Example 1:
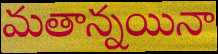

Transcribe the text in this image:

మతాన్నయినా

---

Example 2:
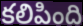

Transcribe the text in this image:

కలిపింది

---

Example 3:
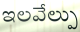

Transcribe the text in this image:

ఇలవేల్పు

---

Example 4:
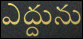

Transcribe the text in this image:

ఎద్దును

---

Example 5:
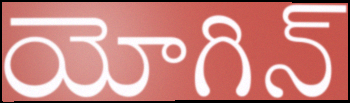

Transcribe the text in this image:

యోగిన్